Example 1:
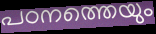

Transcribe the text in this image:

പഠനത്തെയും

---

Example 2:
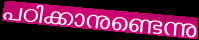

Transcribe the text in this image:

പഠിക്കാനുണ്ടെന്നു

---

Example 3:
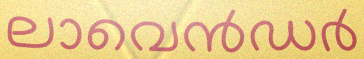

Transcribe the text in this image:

ലാവെൻഡർ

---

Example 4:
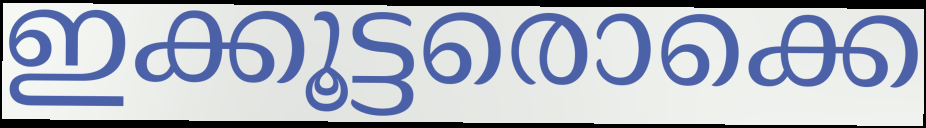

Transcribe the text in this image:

ഇക്കൂട്ടരൊക്കെ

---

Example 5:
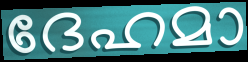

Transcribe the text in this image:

ദേഹമാ